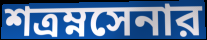
শত্রম্নসেনার